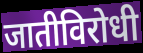
जातीविरोधी